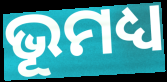
ଭୂମଧ୍ୟ